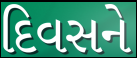
દિવસને